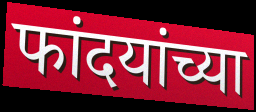
फांदयांच्या